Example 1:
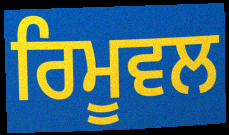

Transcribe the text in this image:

ਰਿਮੂਵਲ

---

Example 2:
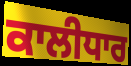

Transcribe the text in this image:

ਕਾਲੀਧਾਰ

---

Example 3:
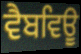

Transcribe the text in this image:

ਵੈਬਵਿਊ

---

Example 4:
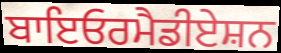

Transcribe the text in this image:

ਬਾਇਓਰਮੈਡੀਏਸ਼ਨ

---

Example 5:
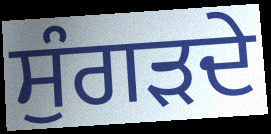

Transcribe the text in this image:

ਸੁੰਗੜਦੇ